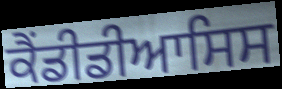
ਕੈਂਡੀਡੀਆਸਿਸ